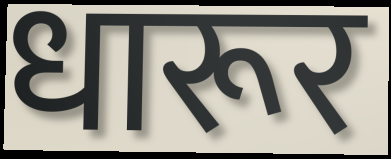
धारूर